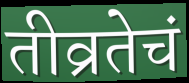
तीव्रतेचं